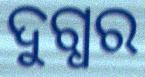
ଦୁଗ୍ଧର